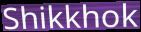
Shikkhok